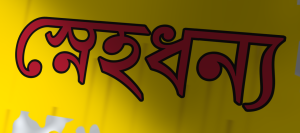
স্নেহধন্য